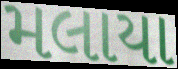
મલાયા